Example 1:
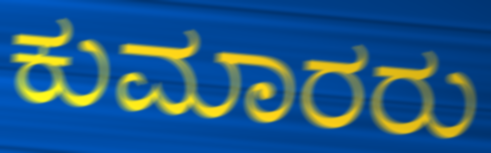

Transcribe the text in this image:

ಕುಮಾರರು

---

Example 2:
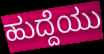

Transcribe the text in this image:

ಹುದ್ದೆಯು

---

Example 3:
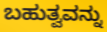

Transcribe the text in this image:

ಬಹುತ್ವವನ್ನು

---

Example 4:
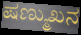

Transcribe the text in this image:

ಷಣ್ಮುಖನ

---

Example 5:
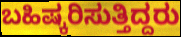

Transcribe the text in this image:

ಬಹಿಷ್ಕರಿಸುತ್ತಿದ್ದರು